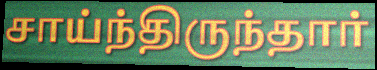
சாய்ந்திருந்தார்